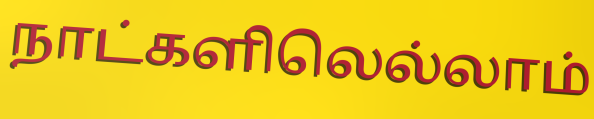
நாட்களிலெல்லாம்